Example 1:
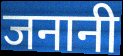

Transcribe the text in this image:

जनानी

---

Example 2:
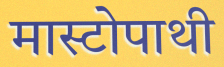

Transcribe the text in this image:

मास्टोपाथी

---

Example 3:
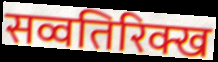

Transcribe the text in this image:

सव्वतिरिक्ख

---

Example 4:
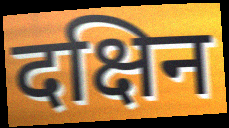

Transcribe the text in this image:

दक्षिन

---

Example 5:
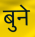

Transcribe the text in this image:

बुने